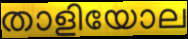
താളിയോല